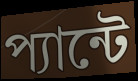
প্যান্টে